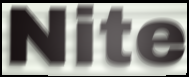
Nite